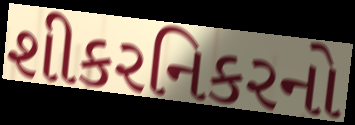
શીકરનિકરનો